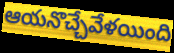
ఆయనొచ్చేవేళయింది